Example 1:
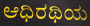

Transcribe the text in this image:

ಆಧಿರಥಿಯ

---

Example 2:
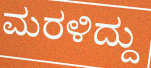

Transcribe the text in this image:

ಮರಳಿದ್ದು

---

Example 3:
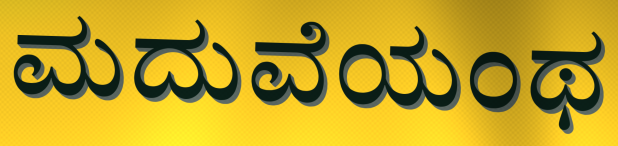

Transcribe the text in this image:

ಮದುವೆಯಂಥ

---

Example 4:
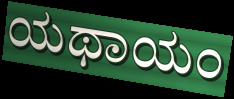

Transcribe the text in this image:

ಯಥಾಯಂ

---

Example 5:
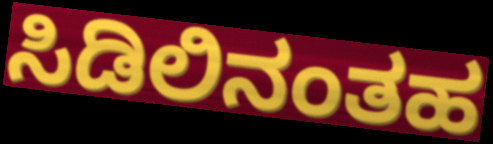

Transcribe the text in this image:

ಸಿಡಿಲಿನಂತಹ